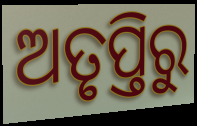
ଅତୃପ୍ତିରୁ